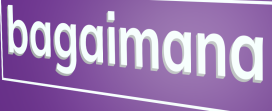
bagaimana